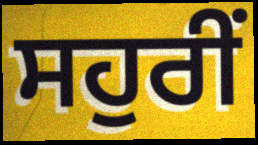
ਸਹੁਰੀਂ